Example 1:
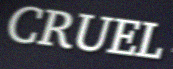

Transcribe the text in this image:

CRUEL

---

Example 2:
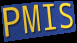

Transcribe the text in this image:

PMIS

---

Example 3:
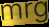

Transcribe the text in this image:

mrg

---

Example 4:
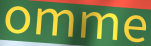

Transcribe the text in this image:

omme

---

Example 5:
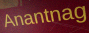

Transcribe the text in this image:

Anantnag